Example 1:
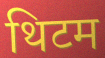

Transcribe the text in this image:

थिटम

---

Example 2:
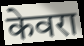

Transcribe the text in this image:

केवरा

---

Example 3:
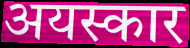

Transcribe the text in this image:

अयस्कार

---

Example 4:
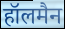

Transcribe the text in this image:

हॉलमैन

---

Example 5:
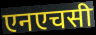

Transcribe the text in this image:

एनएचसी